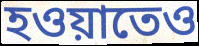
হওয়াতেও